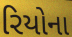
રિયોના